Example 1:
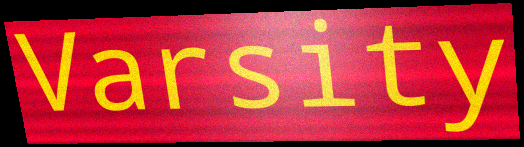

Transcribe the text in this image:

Varsity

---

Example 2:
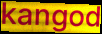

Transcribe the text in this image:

kangod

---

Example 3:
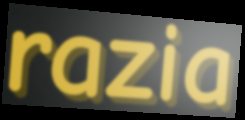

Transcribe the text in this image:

razia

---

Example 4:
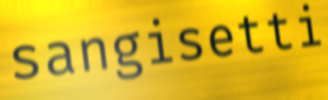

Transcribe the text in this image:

sangisetti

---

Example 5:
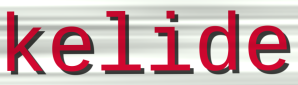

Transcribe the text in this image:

kelide